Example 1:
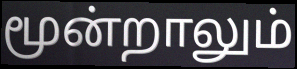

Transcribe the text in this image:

மூன்றாலும்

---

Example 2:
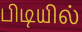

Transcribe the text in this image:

பிடியில்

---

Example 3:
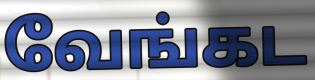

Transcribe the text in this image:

வேங்கட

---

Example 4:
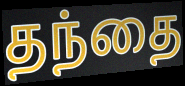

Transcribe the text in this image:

தந்தை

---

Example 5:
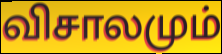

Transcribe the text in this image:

விசாலமும்